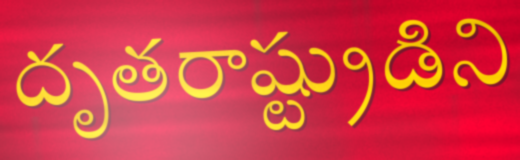
దృతరాష్ట్రుడిని